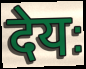
देयः